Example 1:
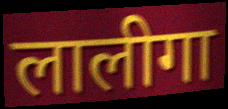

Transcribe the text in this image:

लालीगा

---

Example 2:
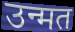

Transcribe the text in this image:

उन्मत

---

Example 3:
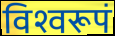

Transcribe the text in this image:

विश्वरूपं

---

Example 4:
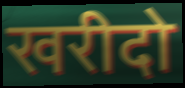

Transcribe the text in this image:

खरीदो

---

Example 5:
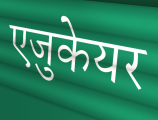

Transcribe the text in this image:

एजुकेयर